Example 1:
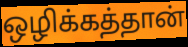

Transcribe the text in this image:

ஒழிக்கத்தான்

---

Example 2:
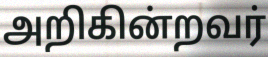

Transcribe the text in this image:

அறிகின்றவர்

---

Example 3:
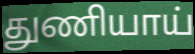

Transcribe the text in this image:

துணியாய்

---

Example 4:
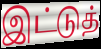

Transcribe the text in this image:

இட்டுத்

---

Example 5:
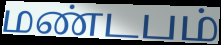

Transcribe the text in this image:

மண்டபம்